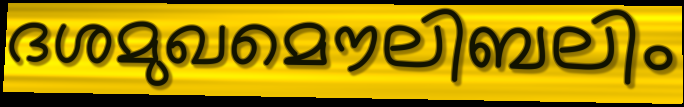
ദശമുഖമൌലിബലിം